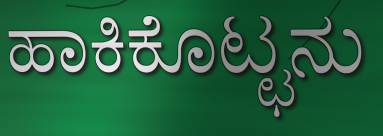
ಹಾಕಿಕೊಟ್ಟನು